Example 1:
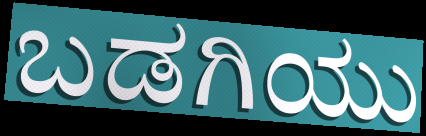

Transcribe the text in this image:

ಬಡಗಿಯು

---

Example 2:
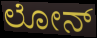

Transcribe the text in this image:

ಲೋನ್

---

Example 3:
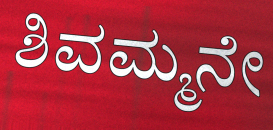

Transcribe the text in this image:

ಶಿವಮ್ಮನೇ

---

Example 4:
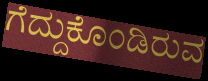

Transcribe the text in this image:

ಗೆದ್ದುಕೊಂಡಿರುವ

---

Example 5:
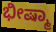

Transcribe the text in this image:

ಭೀಷ್ಮಾ